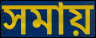
সমায়